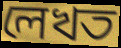
লেখত